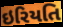
ઇરિયતિ